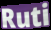
Ruti